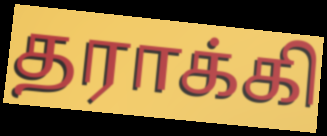
தராக்கி